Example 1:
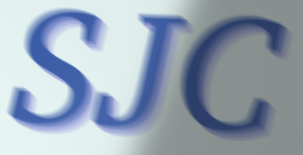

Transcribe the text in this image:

SJC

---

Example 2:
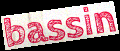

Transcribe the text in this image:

bassin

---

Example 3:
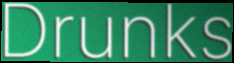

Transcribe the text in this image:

Drunks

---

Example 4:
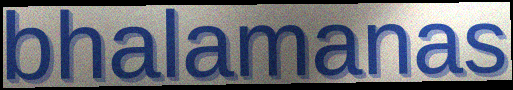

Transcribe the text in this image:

bhalamanas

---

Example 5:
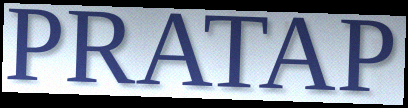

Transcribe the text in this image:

PRATAP